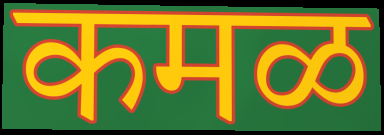
कमळ